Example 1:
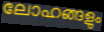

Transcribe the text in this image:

ലോഹങ്ങളും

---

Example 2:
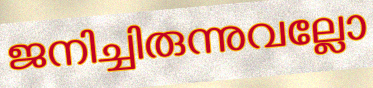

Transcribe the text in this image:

ജനിച്ചിരുന്നുവല്ലോ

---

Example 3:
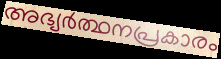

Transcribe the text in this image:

അഭ്യർത്ഥനപ്രകാരം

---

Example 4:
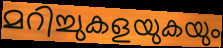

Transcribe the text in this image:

മറിച്ചുകളയുകയും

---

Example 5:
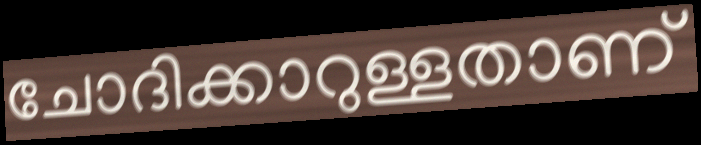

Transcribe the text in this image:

ചോദിക്കാറുള്ളതാണ്